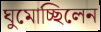
ঘুমোচ্ছিলেন